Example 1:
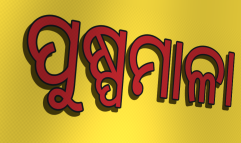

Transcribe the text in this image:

ପୁଷ୍ପମାଳା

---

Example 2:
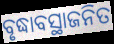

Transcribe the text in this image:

ବୃଦ୍ଧାବସ୍ଥାଜନିତ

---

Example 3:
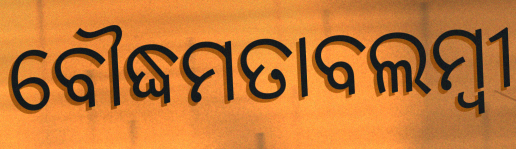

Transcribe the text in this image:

ବୌଦ୍ଧମତାବଲମ୍ବୀ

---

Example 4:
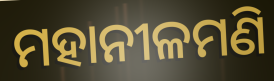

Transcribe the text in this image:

ମହାନୀଳମଣି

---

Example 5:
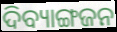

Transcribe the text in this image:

ଦିବ୍ୟାଙ୍ଗଜନ